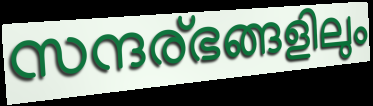
സന്ദര്ഭങ്ങളിലും